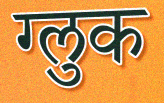
ग्लुक